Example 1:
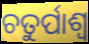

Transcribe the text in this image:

ଚତୁର୍ପାଶ୍ୱ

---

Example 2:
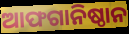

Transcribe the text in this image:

ଆଫଗାନିଷ୍ଠାନ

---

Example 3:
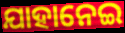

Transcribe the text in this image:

ଯାହାନେଇ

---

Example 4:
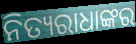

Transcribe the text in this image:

ନିତ୍ୟରାଧାଙ୍କର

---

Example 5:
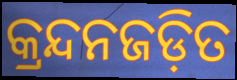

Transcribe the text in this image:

କ୍ରନ୍ଦନଜଡ଼ିତ